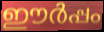
ഈർപ്പം